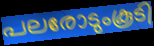
പലരോടുംകൂടി